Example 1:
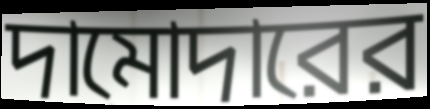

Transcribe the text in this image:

দামোদারের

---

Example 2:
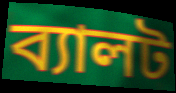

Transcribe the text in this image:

ব্যালট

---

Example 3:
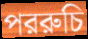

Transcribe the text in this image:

পররুচি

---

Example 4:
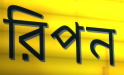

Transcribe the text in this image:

রিপন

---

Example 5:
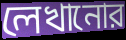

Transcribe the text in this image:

লেখানোর